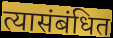
त्यासंबंधित